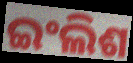
ଇଂଲିଶ